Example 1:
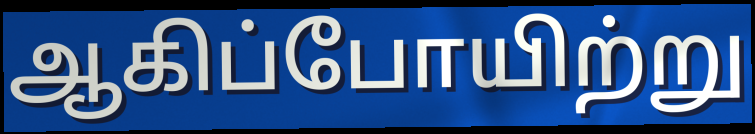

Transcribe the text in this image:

ஆகிப்போயிற்று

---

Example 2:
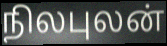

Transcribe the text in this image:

நிலபுலன்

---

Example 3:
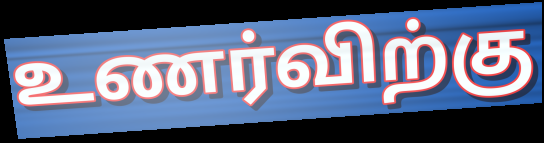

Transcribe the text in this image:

உணர்விற்கு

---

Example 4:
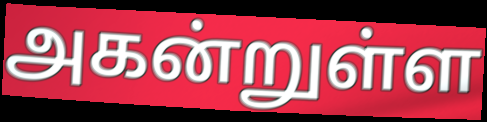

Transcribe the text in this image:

அகன்றுள்ள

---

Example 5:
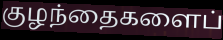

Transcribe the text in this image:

குழந்தைகளைப்